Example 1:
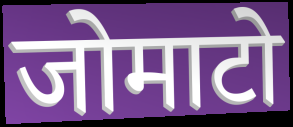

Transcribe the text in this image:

जोमाटो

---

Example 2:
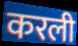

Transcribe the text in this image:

करली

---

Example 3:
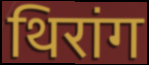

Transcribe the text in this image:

थिरांग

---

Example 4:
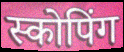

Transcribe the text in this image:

स्कोपिंग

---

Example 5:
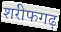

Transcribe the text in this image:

शरीफगढ़